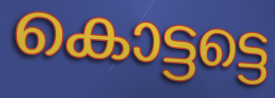
കൊട്ടട്ടെ